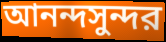
আনন্দসুন্দর